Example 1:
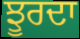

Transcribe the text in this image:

ਝੂਰਦਾ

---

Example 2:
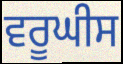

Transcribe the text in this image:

ਵਰੂਘੀਸ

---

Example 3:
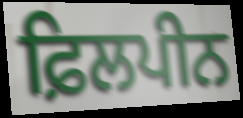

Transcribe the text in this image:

ਫ਼ਿਲਪੀਨ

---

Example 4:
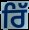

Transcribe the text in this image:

ਰਿੱ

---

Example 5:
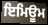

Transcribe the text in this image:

ਇਮਿਊਮ